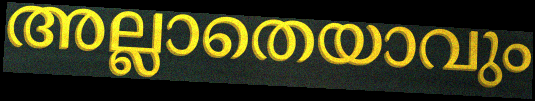
അല്ലാതെയാവും